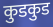
कुडकुड